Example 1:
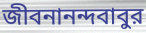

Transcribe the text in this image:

জীবনানন্দবাবুর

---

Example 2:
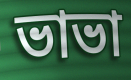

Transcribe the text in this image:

ভাভা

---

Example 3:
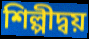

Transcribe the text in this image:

শিল্পীদ্বয়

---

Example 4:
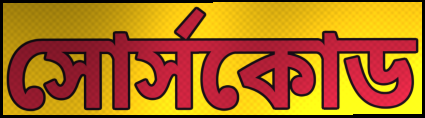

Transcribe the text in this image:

সোর্সকোড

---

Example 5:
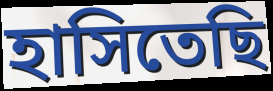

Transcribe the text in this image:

হাসিতেছি